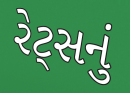
રેટ્સનું